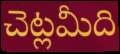
చెట్లమీది